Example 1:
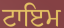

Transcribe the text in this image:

ਟਾਇਮ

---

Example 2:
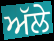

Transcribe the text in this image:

ਅੱਲੇ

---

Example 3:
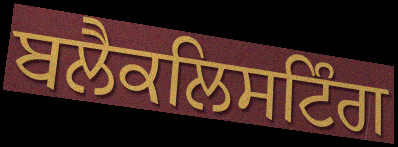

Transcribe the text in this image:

ਬਲੈਕਲਿਸਟਿੰਗ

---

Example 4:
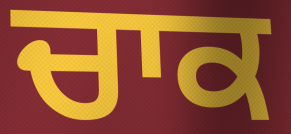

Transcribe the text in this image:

ਚਾਕ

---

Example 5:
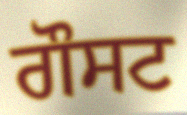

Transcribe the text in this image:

ਗੌਸਟ